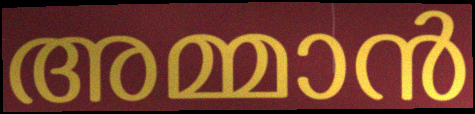
അമ്മാൻ